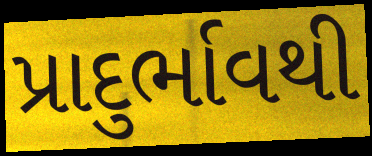
પ્રાદુર્ભાવથી